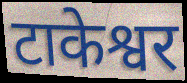
टाकेश्वर